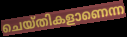
ചെയ്തികളാണെന്ന